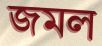
জমল